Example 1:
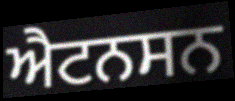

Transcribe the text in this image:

ਐਟਨਸਨ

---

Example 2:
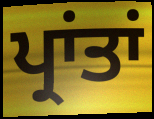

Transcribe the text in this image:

ਪ੍ਰਾਂਤਾਂ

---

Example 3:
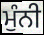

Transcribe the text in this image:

ਮੁੰਨੀ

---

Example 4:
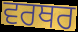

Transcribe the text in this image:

ਵਰਥਰ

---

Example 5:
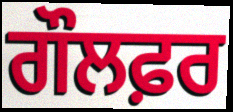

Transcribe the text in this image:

ਗੌਲਫ਼ਰ